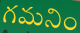
గమనిం